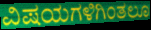
ವಿಷಯಗಳಿಗಿಂತಲೂ